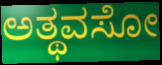
ಅತ್ಥವಸೋ